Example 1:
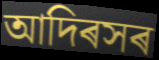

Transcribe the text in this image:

আদিৰসৰ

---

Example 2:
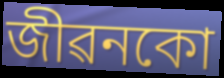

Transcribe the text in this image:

জীৱনকো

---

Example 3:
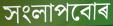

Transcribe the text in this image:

সংলাপবোৰ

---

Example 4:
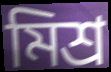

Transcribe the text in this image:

মিশ্ৰ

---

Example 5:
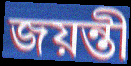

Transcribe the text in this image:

জয়ন্তী